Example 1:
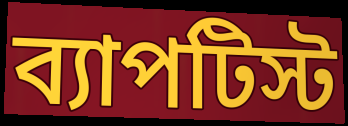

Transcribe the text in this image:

ব্যাপটিস্ট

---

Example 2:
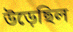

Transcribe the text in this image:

উড়েছিল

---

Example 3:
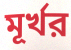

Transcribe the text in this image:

মূর্খর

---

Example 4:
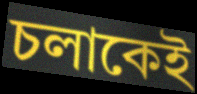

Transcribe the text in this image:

চলাকেই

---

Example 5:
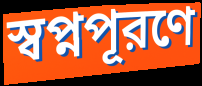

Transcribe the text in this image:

স্বপ্নপূরণে